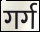
गर्ग